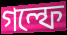
গল্ফে